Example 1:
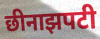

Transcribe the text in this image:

छीनाझपटी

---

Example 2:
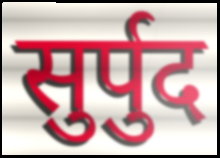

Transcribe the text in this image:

सुर्पुद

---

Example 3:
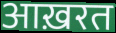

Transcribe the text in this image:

आख़रत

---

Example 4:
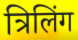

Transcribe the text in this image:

त्रिलिंग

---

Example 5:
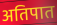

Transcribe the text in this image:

अतिपात